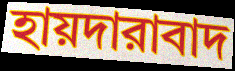
হায়দারাবাদ